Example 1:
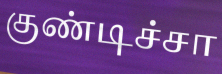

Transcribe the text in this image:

குண்டிச்சா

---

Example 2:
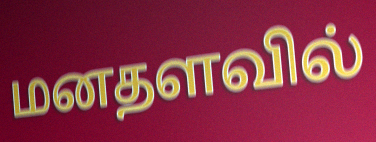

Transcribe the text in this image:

மனதளவில்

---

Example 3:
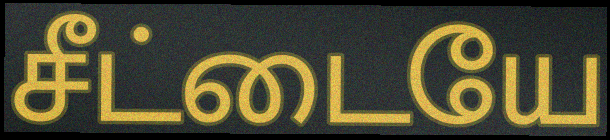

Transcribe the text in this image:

சீட்டையே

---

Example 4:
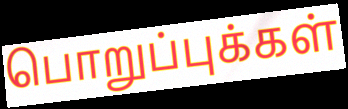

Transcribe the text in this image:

பொறுப்புக்கள்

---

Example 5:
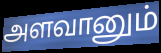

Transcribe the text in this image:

அளவானும்